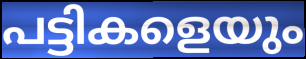
പട്ടികളെയും